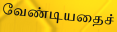
வேண்டியதைச்